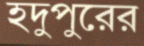
হদুপুরের